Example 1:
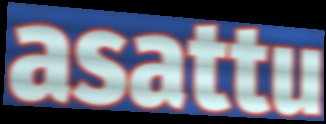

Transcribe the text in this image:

asattu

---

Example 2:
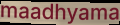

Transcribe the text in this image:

maadhyama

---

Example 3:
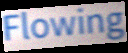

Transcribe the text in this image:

Flowing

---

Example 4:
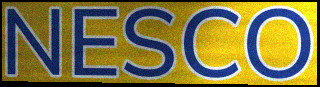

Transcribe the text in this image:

NESCO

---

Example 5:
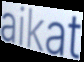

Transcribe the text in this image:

aikat